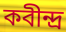
কবীন্দ্র